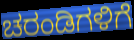
ಚರಂಡಿಗಳಿಗೆ